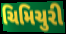
ચિમિચુરી